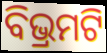
ବିଭ୍ରମଟି